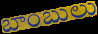
బాంబులు